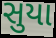
સુયા